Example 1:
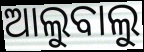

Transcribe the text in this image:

ଆଲୁବାଲୁ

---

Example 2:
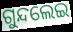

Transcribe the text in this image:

ଗୁନ୍ଦଲେଇ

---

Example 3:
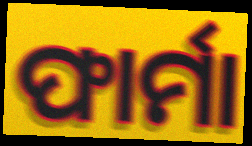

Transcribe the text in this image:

ଫାର୍ମା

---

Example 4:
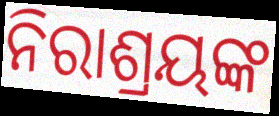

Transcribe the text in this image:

ନିରାଶ୍ରୟଙ୍କ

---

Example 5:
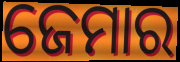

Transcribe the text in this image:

ଜେମାର